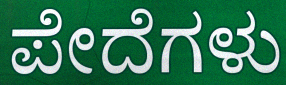
ಪೇದೆಗಳು